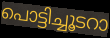
പൊട്ടിച്ചൂടറാ